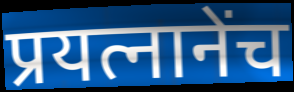
प्रयत्नानेंच